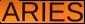
ARIES